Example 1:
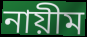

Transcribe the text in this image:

নায়ীম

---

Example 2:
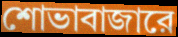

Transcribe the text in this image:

শোভাবাজারে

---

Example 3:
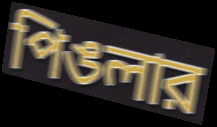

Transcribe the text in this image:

পিঙলার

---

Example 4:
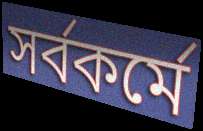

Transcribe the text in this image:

সর্বকর্মে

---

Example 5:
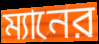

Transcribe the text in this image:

ম্যানের